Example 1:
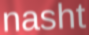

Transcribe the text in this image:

nasht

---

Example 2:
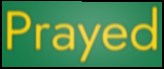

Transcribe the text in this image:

Prayed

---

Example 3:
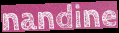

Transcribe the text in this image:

nandine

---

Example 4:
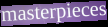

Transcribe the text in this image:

masterpieces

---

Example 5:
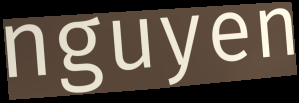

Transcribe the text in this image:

nguyen